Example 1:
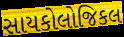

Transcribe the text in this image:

સાયકોલોજિકલ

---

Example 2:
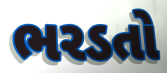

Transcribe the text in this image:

ભરડતો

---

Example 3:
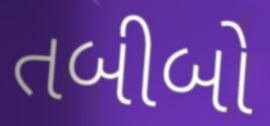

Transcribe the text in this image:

તબીબો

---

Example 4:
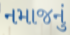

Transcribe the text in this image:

નમાજનું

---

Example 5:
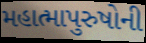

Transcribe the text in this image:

મહાત્માપુરુષોની